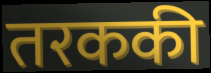
तरककी